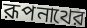
রূপনাথের